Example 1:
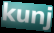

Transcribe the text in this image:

kunj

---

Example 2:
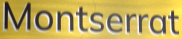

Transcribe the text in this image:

Montserrat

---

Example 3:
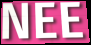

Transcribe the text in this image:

NEE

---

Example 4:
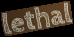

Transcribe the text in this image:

lethal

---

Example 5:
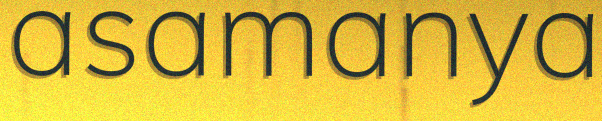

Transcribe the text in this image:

asamanya